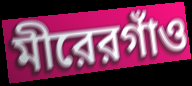
মীরেরগাঁও